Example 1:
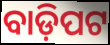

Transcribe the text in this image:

ବାଡ଼ିପଟ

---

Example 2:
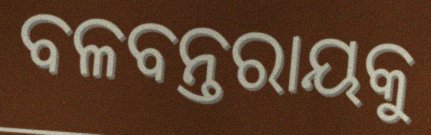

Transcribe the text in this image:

ବଳବନ୍ତରାୟକୁ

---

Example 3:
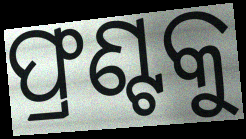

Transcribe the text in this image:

ଫ୍ରଣ୍ଟକୁ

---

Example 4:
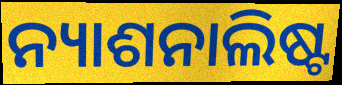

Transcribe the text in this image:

ନ୍ୟାଶନାଲିଷ୍ଟ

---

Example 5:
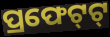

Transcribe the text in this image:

ପ୍ରଫେଟ୍‌ଟ୍